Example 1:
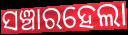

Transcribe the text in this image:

ସଞ୍ଚାରହେଲା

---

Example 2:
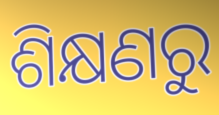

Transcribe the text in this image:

ଶିକ୍ଷଣରୁ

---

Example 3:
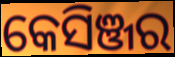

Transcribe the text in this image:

କେସିଞ୍ଜର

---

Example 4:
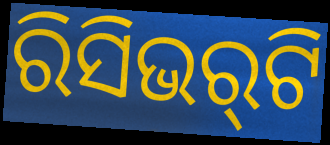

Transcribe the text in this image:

ରିସିଭର୍‌ଟି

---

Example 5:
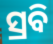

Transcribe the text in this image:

ସ୍ରବି